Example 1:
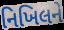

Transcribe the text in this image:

નિખિલને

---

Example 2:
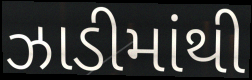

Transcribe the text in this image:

ઝાડીમાંથી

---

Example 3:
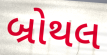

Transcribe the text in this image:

બ્રોથલ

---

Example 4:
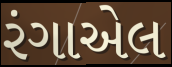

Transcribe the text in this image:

રંગાએલ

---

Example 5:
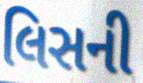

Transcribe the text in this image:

લિસની